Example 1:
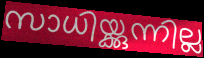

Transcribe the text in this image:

സാധിയ്ക്കുന്നില്ല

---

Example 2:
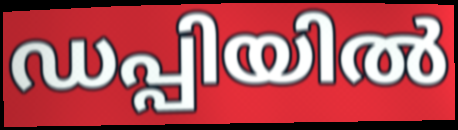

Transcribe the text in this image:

ഡപ്പിയിൽ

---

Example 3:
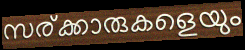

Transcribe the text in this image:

സര്ക്കാരുകളെയും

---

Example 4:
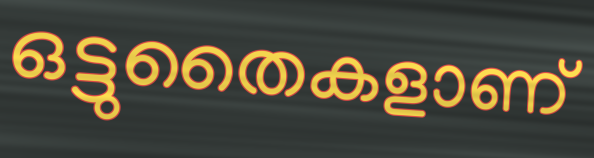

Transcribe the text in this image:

ഒട്ടുതൈകളാണ്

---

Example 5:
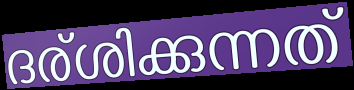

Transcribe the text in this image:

ദര്ശിക്കുന്നത്